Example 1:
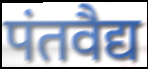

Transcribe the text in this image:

पंतवैद्य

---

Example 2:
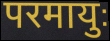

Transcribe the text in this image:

परमायुः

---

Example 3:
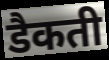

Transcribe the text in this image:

डैकती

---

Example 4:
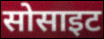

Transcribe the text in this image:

सोसाइट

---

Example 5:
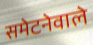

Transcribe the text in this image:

समेटनेवाले